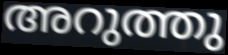
അറുത്തു